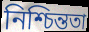
নিশ্চিন্ততা